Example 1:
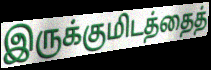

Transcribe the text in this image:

இருக்குமிடத்தைத்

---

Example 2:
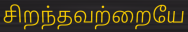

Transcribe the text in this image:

சிறந்தவற்றையே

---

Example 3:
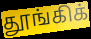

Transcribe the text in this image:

தூங்கிக்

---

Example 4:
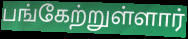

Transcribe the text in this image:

பங்கேற்றுள்ளார்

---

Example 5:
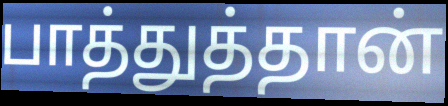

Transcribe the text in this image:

பாத்துத்தான்